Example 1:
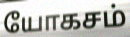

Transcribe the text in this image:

யோகசம்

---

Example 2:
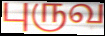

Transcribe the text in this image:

புருவ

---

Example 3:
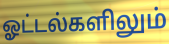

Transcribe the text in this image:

ஓட்டல்களிலும்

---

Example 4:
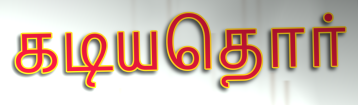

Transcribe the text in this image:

கடியதொர்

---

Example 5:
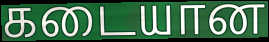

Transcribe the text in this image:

கடையான